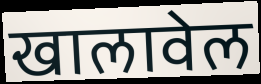
खालावेल